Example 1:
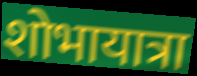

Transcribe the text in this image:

शोभायात्रा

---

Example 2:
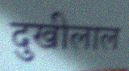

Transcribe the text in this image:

दुखीलाल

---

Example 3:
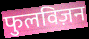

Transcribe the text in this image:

फुलविज़न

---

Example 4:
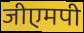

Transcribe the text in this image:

जीएमपी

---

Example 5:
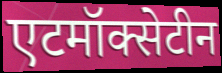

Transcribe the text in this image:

एटमॉक्सेटीन